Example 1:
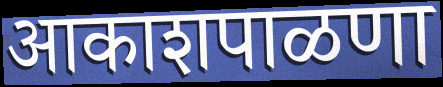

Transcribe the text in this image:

आकाशपाळणा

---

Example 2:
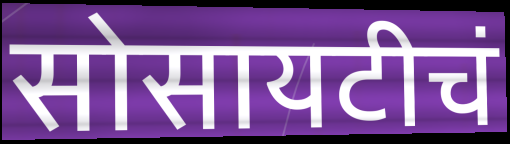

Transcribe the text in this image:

सोसायटीचं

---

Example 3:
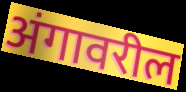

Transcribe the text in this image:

अंगावरील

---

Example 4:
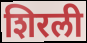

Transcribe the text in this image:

शिरली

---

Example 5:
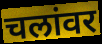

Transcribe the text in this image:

चलांवर